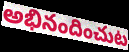
అభినందించుట